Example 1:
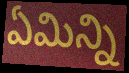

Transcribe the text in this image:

ఏమిన్ని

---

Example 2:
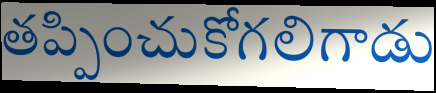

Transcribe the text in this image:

తప్పించుకోగలిగాడు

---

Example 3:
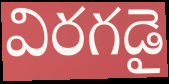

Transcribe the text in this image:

విరగడై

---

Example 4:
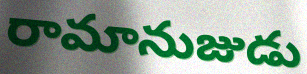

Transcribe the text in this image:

రామానుజుడు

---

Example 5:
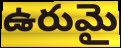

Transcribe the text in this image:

ఉరుమై